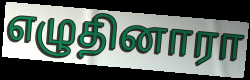
எழுதினாரா